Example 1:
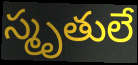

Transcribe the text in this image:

స్మృతులే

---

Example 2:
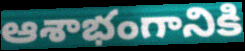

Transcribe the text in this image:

ఆశాభంగానికి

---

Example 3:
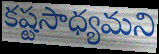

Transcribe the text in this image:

కష్టసాధ్యమని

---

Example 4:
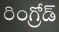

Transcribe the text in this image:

రింగ్రోడ్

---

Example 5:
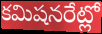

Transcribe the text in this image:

కమిషనరేట్లో